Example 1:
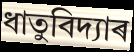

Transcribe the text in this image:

ধাতুবিদ্যাৰ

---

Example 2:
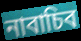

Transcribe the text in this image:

নাবাচিব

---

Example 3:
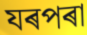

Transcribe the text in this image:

যৰপৰা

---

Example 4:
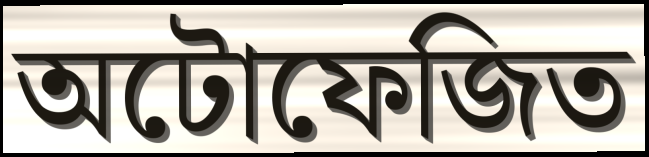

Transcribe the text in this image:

অটোফেজিত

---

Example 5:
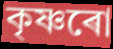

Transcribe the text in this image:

কৃষ্ণৰো